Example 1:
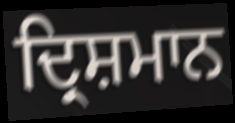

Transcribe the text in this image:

ਦ੍ਰਿਸ਼ਮਾਨ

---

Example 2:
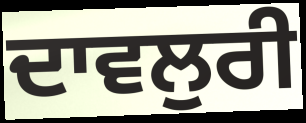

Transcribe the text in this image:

ਦਾਵਲੁਰੀ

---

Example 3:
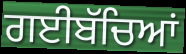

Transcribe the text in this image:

ਗਈਬੱਚਿਆਂ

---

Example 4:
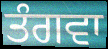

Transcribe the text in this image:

ਤੰਗਵਾ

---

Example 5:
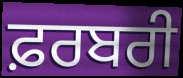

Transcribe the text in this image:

ਫ਼ਰਬਰੀ